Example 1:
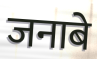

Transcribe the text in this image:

जनाबे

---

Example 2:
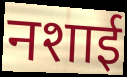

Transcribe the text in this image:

नशाई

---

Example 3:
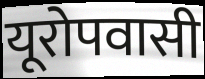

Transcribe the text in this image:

यूरोपवासी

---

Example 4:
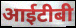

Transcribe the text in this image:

आईटीबी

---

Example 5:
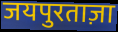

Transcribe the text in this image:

जयपुरताज़ा